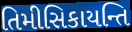
તિમીસિકાયન્તિ